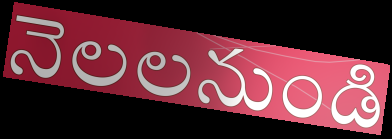
నెలలనుండి